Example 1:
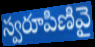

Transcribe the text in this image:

స్వరూపిణివై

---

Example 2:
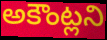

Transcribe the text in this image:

అకౌంట్లని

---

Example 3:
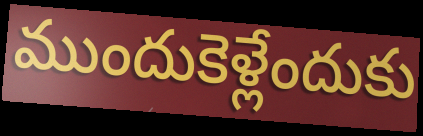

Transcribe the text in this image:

ముందుకెళ్లేందుకు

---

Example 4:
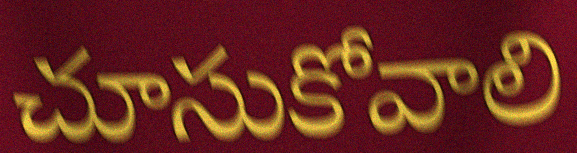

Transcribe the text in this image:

చూసుకోవాలి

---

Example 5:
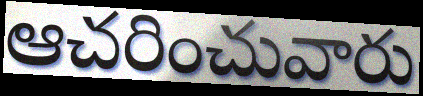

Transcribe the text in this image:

ఆచరించువారు